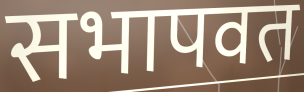
सभापवत